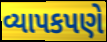
વ્યાપકપણે